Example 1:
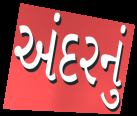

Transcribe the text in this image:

અંદરનું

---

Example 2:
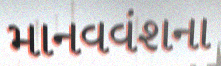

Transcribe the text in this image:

માનવવંશના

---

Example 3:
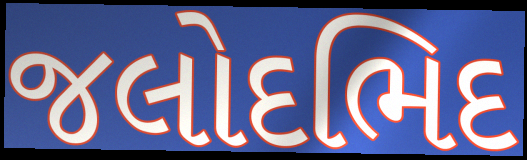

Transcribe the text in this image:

જલોદભિદ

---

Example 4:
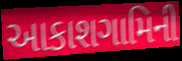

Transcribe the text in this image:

આકાશગામિની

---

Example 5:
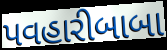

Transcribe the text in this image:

પવહારીબાબા